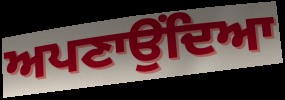
ਅਪਣਾਉਂਦਿਆ